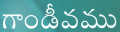
గాండీవము